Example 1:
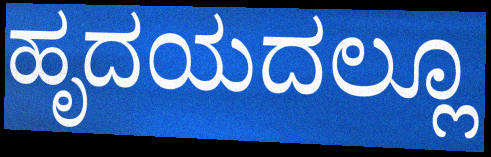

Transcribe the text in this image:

ಹೃದಯದಲ್ಲೂ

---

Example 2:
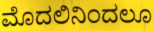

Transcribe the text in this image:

ಮೊದಲಿನಿಂದಲೂ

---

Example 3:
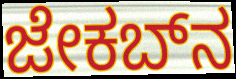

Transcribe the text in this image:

ಜೇಕಬ್‌ನ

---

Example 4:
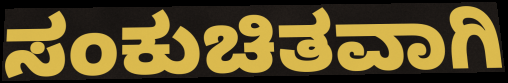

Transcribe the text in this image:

ಸಂಕುಚಿತವಾಗಿ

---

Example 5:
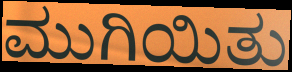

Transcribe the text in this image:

ಮುಗಿಯಿತು